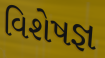
વિશેષજ્ઞ